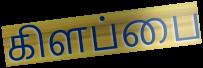
கிளப்பை